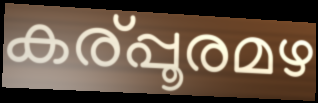
കര്പ്പൂരമഴ